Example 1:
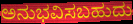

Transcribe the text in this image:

ಅನುಭವಿಸಬಹುದು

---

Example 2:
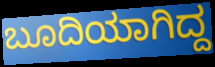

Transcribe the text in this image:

ಬೂದಿಯಾಗಿದ್ದ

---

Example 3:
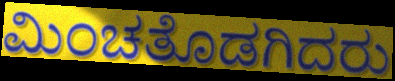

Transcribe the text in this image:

ಮಿಂಚತೊಡಗಿದರು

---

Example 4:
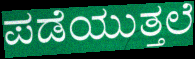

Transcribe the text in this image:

ಪಡೆಯುತ್ತಲೆ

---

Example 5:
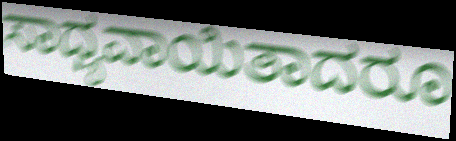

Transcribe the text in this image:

ಸಾಧ್ಯವಾಯಿತಾದರೂ